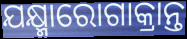
ଯକ୍ଷ୍ମାରୋଗାକ୍ରାନ୍ତ